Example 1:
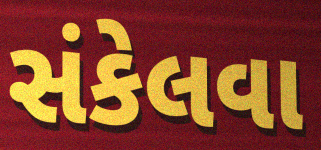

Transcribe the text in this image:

સંકેલવા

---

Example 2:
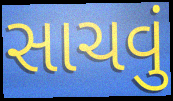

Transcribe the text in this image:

સાચવું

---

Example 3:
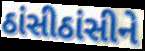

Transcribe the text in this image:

ઠાંસીઠાંસીને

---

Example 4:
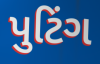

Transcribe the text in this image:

પુટિંગ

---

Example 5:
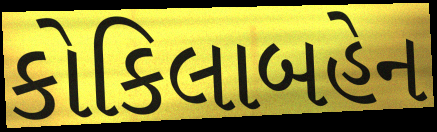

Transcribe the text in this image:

કોકિલાબહેન